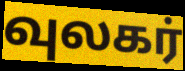
வுலகர்